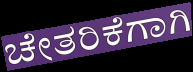
ಚೇತರಿಕೆಗಾಗಿ